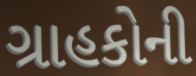
ગ્રાહકોની